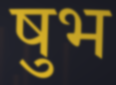
षुभ